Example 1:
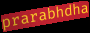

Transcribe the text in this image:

prarabhdha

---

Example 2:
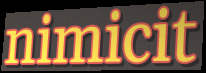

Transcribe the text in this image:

nimicit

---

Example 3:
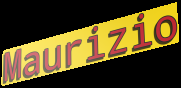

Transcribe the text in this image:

Maurizio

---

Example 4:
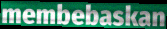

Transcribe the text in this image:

membebaskan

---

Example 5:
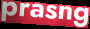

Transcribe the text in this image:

prasng